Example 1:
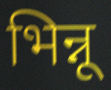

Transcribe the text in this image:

भिन्नू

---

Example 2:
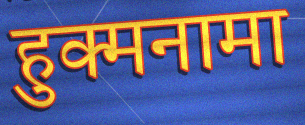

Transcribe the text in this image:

हुक्मनामा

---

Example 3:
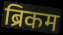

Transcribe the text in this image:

ब्रिकम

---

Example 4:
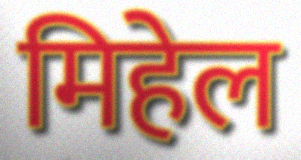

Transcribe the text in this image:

मिहेल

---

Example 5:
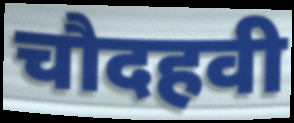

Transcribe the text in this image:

चौदहवी